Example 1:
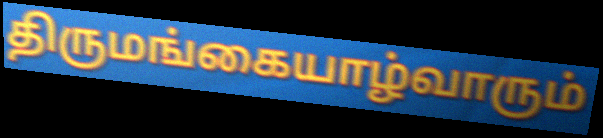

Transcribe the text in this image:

திருமங்கையாழ்வாரும்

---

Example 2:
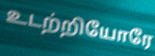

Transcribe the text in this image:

உடற்றியோரே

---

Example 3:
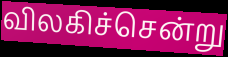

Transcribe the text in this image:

விலகிச்சென்று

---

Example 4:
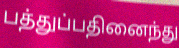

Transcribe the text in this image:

பத்துப்பதினைந்து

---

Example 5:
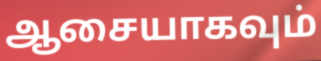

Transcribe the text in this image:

ஆசையாகவும்